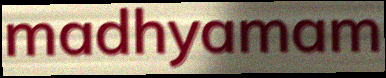
madhyamam